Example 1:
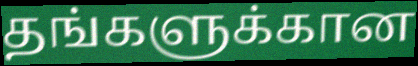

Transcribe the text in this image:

தங்களுக்கான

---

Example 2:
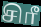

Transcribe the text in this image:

சிரீ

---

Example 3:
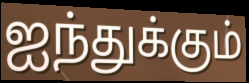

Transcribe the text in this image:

ஐந்துக்கும்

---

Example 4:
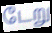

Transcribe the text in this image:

டேறு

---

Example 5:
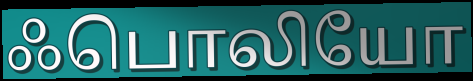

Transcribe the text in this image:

ஃபொலியோ